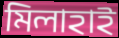
মিলাহাই